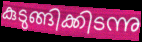
കുടുങ്ങിക്കിടന്നു